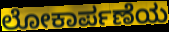
ಲೋಕಾರ್ಪಣೆಯ